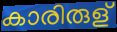
കാരിരുള്